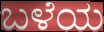
ಬಳೆಯ